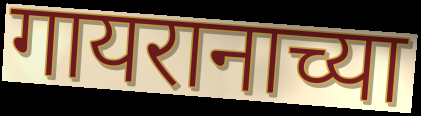
गायरानाच्या